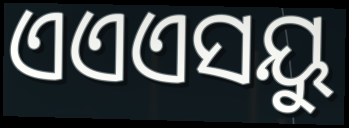
ଏଏଏସୟୁ